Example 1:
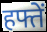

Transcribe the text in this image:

हफ्तें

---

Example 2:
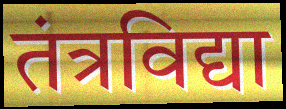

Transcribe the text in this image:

तंत्रविद्या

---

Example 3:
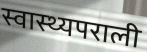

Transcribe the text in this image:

स्वास्थ्यपराली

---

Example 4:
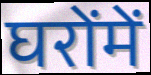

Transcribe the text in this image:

घरोंमें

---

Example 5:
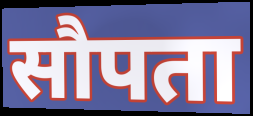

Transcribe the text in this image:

सौपता